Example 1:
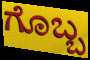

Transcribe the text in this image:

ಗೊಬ್ಬ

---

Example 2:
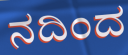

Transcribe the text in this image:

ನದಿಂದ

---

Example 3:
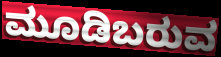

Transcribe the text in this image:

ಮೂಡಿಬರುವ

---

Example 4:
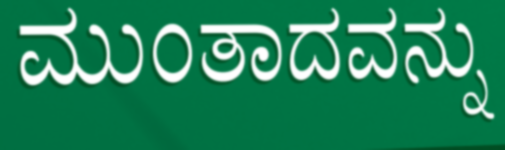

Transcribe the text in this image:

ಮುಂತಾದವನ್ನು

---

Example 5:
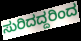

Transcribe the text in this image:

ಸುರಿದದ್ದರಿಂದ